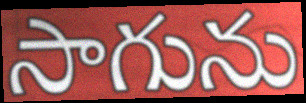
సాగును